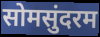
सोमसुंदरम